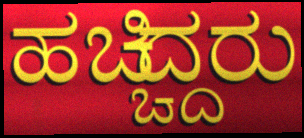
ಹಚ್ಚಿದ್ದರು